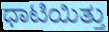
ಧಾಟಿಯಿತ್ತು